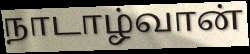
நாடாழ்வான்